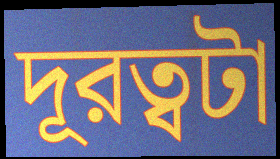
দূরত্বটা